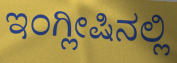
ಇಂಗ್ಲೀಷಿನಲ್ಲಿ